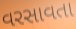
વરસાવતા